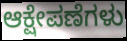
ಆಕ್ಷೇಪಣೆಗಳು